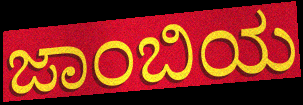
ಜಾಂಬಿಯ